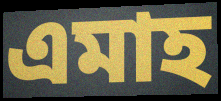
এমাহ